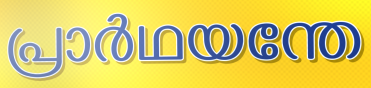
പ്രാർഥയന്തേ